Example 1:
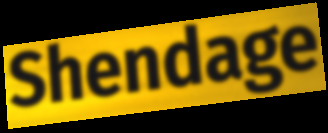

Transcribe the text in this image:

Shendage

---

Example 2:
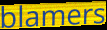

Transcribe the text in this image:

blamers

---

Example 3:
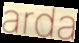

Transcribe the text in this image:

arda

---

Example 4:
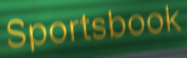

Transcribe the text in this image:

Sportsbook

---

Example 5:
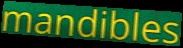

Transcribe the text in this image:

mandibles